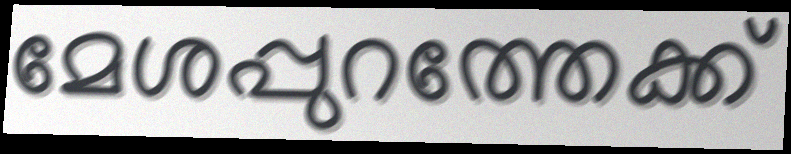
മേശപ്പുറത്തേക്ക്